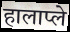
हालाप्ले